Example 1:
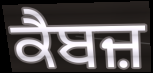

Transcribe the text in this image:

ਕੈਬਜ਼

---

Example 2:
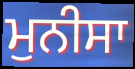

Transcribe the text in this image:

ਮੁਨੀਸਾ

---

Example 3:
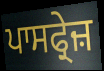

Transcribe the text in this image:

ਪਾਸਫ੍ਰੇਜ਼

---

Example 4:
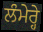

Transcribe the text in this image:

ਲੰਮੇਰ੍ਹੇ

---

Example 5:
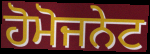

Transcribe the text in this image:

ਹੋਮੋਜਨੇਟ